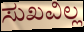
ಸುಖವಿಲ್ಲ